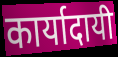
कार्यादायी